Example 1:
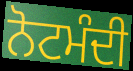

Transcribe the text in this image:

ਨੋਟਮੰਦੀ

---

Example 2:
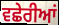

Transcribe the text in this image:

ਵਛੇਰੀਆਂ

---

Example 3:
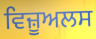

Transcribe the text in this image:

ਵਿਜ਼ੂਅਲਸ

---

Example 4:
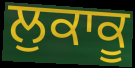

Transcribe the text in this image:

ਲੁਕਾਕੂ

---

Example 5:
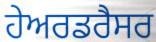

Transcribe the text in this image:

ਹੇਅਰਡਰੈਸਰ